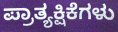
ಪ್ರಾತ್ಯಕ್ಷಿಕೆಗಳು